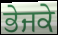
ਭੇਜਕੇ